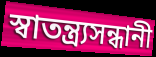
স্বাতন্ত্র্যসন্ধানী